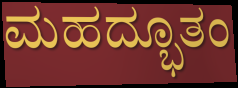
ಮಹದ್ಭೂತಂ